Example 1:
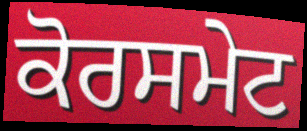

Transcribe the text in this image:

ਕੋਰਸਮੇਟ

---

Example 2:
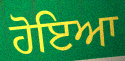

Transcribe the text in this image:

ਹੋਇਆ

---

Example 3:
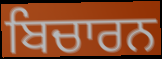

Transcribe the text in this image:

ਬਿਚਾਰਨ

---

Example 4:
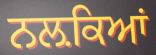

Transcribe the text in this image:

ਨਲ਼ਕਿਆਂ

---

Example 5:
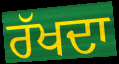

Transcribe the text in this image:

ਰੱਖਦਾ